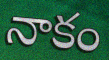
నాకం